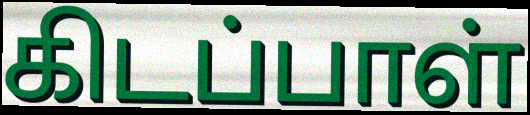
கிடப்பாள்